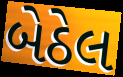
બેઠેલ